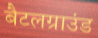
बैटलग्राउंड